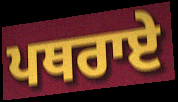
ਪਥਰਾਏ